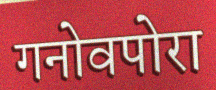
गनोवपोरा